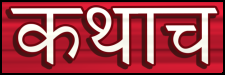
कथाच